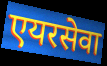
एयरसेवा